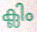
ക്ലിം